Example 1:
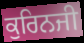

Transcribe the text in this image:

ਕੁਰਿਨਜੀ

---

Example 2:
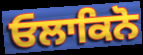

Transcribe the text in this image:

ਓਲਾਕਿਨੋ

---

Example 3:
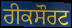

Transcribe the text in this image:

ਰੀਕਸੌਰਟ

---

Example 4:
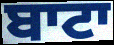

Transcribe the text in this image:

ਬਾਟਾ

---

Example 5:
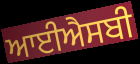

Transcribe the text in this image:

ਆਈਐਸਬੀ